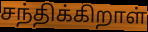
சந்திக்கிறாள்